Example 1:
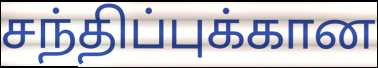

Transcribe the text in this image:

சந்திப்புக்கான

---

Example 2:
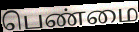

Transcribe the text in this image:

பெண்மை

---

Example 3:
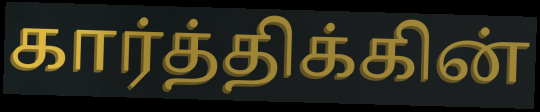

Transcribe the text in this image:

கார்த்திக்கின்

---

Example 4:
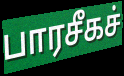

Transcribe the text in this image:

பாரசீகச்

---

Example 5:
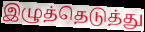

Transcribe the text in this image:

இழுத்தெடுத்து